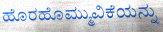
ಹೊರಹೊಮ್ಮುವಿಕೆಯನ್ನು